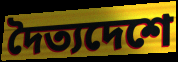
দৈত্যদেশে